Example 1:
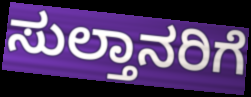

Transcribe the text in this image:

ಸುಲ್ತಾನರಿಗೆ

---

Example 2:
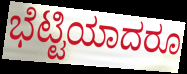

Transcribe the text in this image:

ಭೆಟ್ಟಿಯಾದರೂ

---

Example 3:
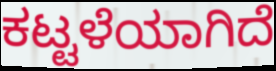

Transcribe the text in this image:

ಕಟ್ಟಳೆಯಾಗಿದೆ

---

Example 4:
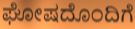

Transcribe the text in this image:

ಘೋಷದೊಂದಿಗೆ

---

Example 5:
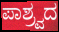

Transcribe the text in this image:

ಪಾಶ್ರ್ವದ